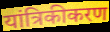
यांत्रिकीकरण